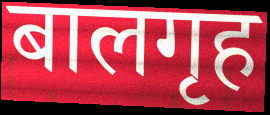
बालगृह